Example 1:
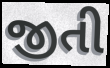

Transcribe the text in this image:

જીતી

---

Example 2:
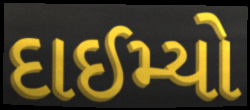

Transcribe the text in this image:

દાઈમ્યો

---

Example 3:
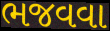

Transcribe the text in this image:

ભજવવા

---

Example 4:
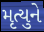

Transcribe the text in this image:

મૃત્યુને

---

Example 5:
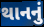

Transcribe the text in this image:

થાનનું